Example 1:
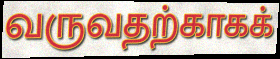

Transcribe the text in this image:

வருவதற்காகக்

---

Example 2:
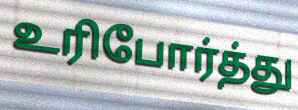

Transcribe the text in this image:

உரிபோர்த்து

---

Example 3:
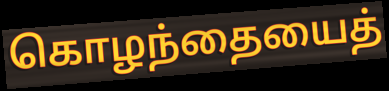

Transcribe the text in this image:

கொழந்தையைத்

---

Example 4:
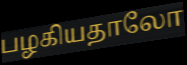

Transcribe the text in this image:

பழகியதாலோ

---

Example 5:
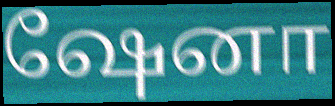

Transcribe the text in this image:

ஷேனா